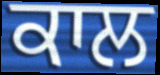
ਕਾਲ